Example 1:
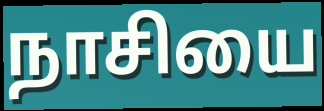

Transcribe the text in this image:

நாசியை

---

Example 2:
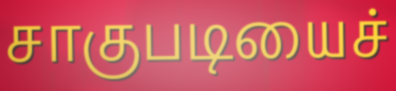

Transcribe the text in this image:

சாகுபடியைச்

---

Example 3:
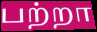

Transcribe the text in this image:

பற்றா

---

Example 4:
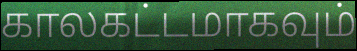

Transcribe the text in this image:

காலகட்டமாகவும்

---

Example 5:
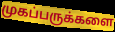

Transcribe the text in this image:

முகப்பருக்களை